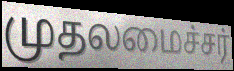
முதலமைச்சர்